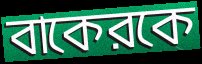
বাকেরকে